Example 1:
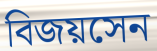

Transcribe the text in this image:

বিজয়সেন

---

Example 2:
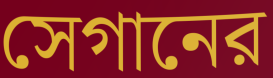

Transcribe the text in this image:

সেগানের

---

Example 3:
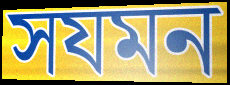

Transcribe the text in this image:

সযমন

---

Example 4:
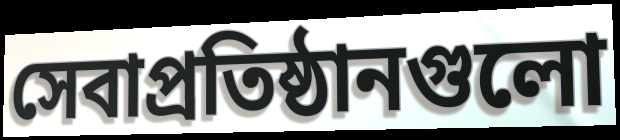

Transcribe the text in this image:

সেবাপ্রতিষ্ঠানগুলো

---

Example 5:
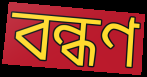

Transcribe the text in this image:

বন্ধণ